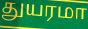
துயரமா